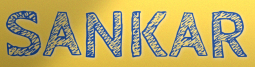
SANKAR